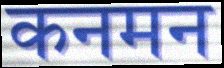
कनमन